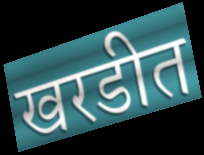
खरडीत